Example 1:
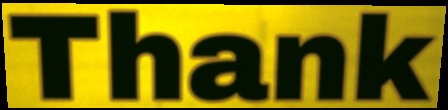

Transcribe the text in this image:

Thank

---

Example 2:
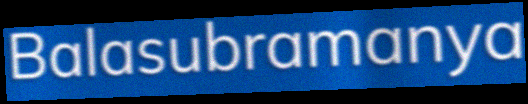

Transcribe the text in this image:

Balasubramanya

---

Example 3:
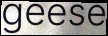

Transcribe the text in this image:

geese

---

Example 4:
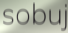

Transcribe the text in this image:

sobuj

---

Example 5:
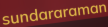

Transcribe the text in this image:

sundararaman